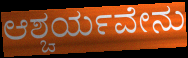
ಆಶ್ಚರ್ಯವೇನು